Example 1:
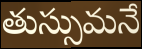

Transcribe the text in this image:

తుస్సుమనే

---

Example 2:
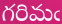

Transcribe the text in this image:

గరిమఁ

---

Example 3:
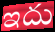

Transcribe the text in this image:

ఇదు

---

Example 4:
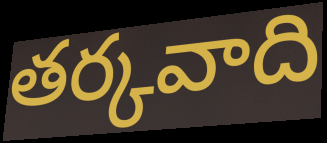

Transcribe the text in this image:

తర్కవాది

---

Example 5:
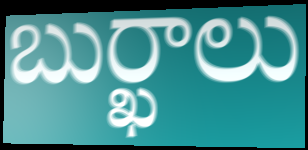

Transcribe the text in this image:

బుర్ఖాలు